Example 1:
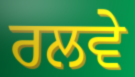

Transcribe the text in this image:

ਰਲਵੇ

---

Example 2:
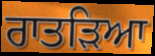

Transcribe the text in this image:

ਰਾਤੜਿਆ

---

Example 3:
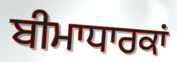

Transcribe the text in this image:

ਬੀਮਾਧਾਰਕਾਂ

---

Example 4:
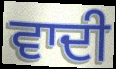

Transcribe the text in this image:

ਵਾਦੀ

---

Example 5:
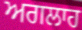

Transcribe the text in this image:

ਅਗਲਾਹ